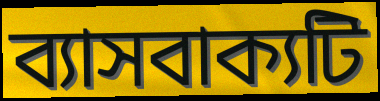
ব্যাসবাক্যটি